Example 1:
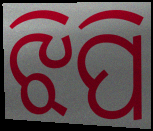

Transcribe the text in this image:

ଝିପି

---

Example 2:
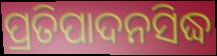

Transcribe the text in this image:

ପ୍ରତିପାଦନସିଦ୍ଧ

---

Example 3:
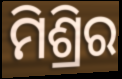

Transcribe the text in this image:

ମିଶ୍ରିର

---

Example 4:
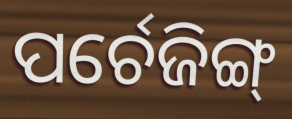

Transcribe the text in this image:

ପର୍ଚେଜିଙ୍ଗ୍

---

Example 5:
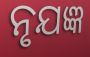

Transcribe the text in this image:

ନୃଯଜ୍ଞ